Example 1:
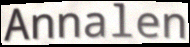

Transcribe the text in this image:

Annalen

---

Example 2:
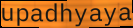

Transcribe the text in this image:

upadhyaya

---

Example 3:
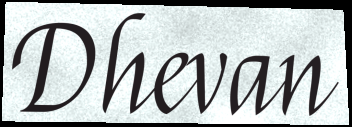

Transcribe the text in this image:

Dhevan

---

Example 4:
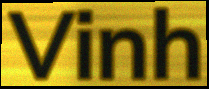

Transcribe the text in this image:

Vinh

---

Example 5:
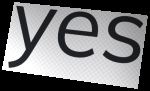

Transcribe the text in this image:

yes